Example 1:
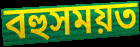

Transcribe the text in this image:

বহুসময়ত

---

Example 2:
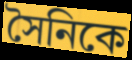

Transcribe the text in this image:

সৈনিকে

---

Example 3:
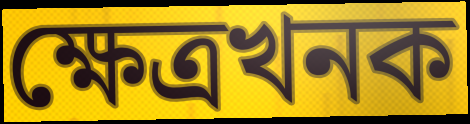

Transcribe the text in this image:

ক্ষেত্ৰখনক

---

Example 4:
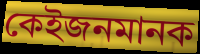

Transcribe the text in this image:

কেইজনমানক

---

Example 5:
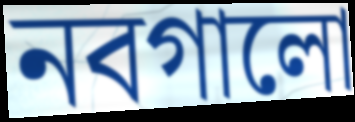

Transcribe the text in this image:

নবগালো